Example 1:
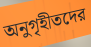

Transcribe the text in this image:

অনুগৃহীতদের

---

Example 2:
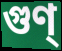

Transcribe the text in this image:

গুণ্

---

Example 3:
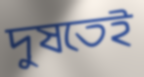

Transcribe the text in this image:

দুষতেই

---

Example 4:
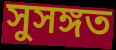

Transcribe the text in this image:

সুসঙ্গত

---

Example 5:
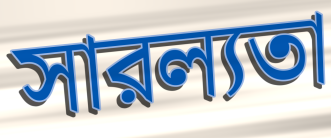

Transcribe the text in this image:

সারল্যতা